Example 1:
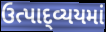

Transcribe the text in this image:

ઉત્પાદ્વ્યયમાં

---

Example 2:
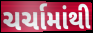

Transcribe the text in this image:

ચર્ચામાંથી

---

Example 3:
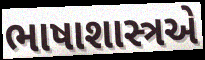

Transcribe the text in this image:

ભાષાશાસ્ત્રએ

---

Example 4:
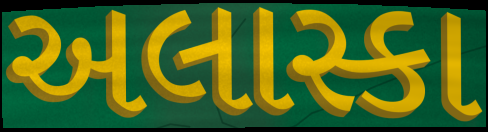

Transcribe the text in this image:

અલાસ્કા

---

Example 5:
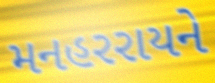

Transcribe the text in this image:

મનહરરાયને